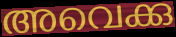
അവെക്കു